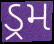
ડ્રમ